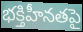
భక్తిహీనతపై